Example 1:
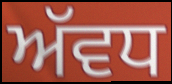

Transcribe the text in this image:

ਅੱਵਧ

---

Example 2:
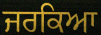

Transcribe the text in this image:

ਜਰਕਿਆ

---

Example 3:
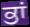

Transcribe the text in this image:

ਭਾਂ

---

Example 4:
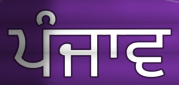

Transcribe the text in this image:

ਪੰਜਾਵ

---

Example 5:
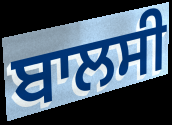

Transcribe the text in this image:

ਬਾਲਸੀ